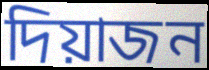
দিয়াজন